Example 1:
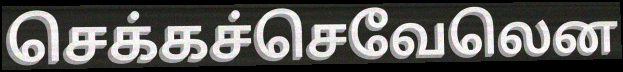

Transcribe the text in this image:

செக்கச்செவேலென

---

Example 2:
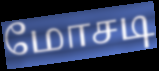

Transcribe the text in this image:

மோசடி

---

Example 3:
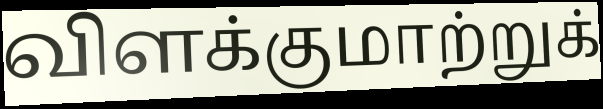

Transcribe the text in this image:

விளக்குமாற்றுக்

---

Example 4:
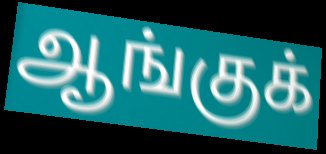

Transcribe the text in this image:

ஆங்குக்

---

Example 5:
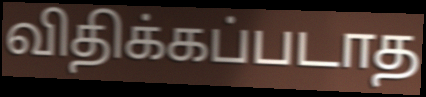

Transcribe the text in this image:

விதிக்கப்படாத